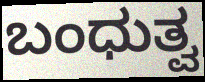
ಬಂಧುತ್ವ